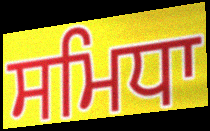
ਸਮਿਧਾ